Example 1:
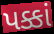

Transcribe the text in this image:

પક્કાં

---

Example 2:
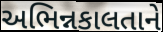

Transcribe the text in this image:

અભિન્નકાલતાને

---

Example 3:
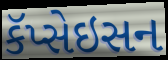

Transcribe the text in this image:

કૅપ્સેઇસન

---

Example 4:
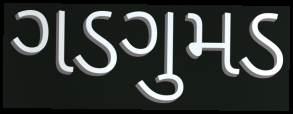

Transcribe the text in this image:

ગડગુમડ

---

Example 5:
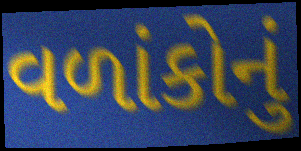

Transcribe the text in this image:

વળાંકોનું